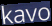
kavo